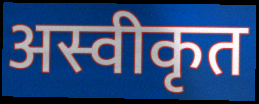
अस्वीकृत